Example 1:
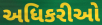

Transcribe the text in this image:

અધિકરીઓ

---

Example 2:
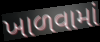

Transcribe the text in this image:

ખાળવામાં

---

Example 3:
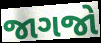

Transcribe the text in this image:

જાગજો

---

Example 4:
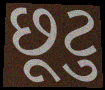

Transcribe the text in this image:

છૂટુ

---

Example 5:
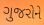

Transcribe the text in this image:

ગુજરોને